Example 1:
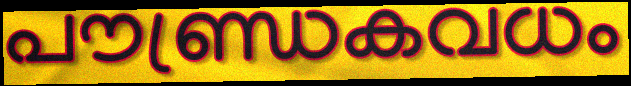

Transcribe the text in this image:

പൗണ്ഡ്രകവധം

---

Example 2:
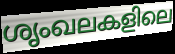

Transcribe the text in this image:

ശൃംഖലകളിലെ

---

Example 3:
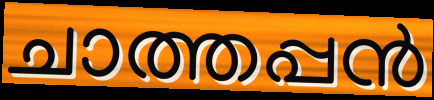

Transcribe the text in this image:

ചാത്തപ്പൻ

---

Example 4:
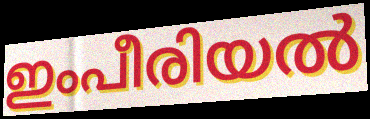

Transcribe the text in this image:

ഇംപീരിയൽ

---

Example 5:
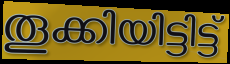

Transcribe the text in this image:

തൂക്കിയിട്ടിട്ട്